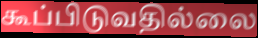
கூப்பிடுவதில்லை